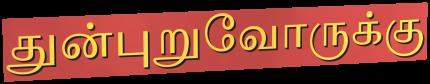
துன்புறுவோருக்கு